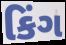
કિંગ